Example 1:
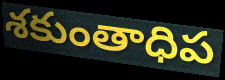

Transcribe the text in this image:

శకుంతాధిప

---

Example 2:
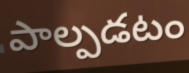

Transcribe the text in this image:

పాల్పడటం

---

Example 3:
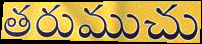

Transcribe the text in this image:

తరుముచు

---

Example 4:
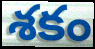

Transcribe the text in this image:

శకం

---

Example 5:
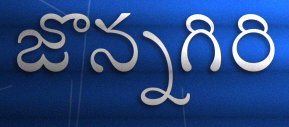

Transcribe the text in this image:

జొన్నగిరి